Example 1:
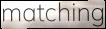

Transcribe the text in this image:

matching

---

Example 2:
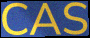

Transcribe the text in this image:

CAS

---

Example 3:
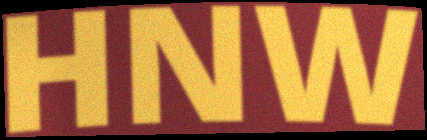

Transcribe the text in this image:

HNW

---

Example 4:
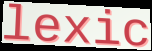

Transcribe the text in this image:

lexic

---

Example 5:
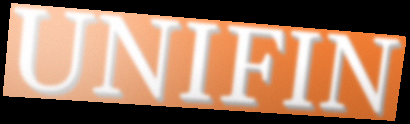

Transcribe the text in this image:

UNIFIN